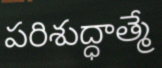
పరిశుద్ధాత్మే